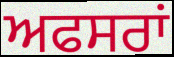
ਅਫਸਰਾਂ